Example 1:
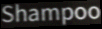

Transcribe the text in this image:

Shampoo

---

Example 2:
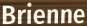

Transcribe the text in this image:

Brienne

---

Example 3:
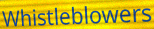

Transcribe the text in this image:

Whistleblowers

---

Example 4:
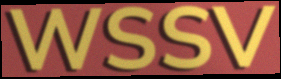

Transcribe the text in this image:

WSSV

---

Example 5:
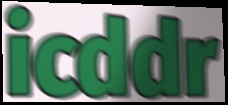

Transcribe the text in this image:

icddr